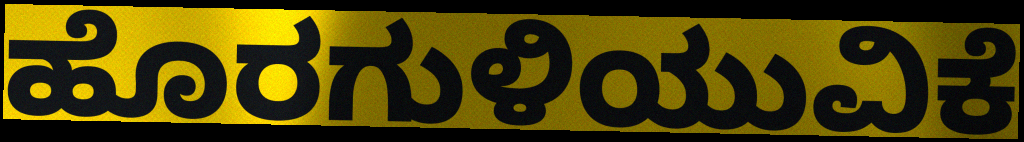
ಹೊರಗುಳಿಯುವಿಕೆ